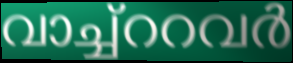
വാച്ച്ററവർ